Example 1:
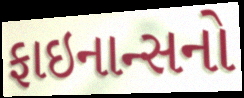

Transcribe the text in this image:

ફાઇનાન્સનો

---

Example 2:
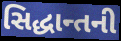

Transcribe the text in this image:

સિદ્ધાન્તની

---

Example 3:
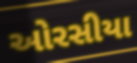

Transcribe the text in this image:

ઓરસીયા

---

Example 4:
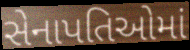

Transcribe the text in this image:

સેનાપતિઓમાં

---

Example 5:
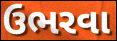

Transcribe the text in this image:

ઉભરવા